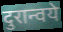
दुरान्वये